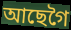
আছেগৈ